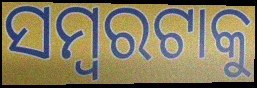
ସମ୍ବରଟାକୁ